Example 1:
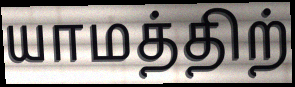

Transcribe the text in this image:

யாமத்திற்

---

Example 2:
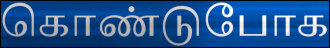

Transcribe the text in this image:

கொண்டுபோக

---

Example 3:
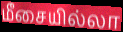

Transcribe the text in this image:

மீசையில்லா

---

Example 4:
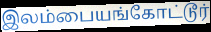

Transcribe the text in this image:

இலம்பையங்கோட்டூர்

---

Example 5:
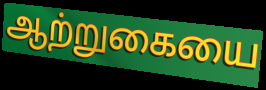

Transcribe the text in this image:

ஆற்றுகையை